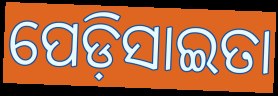
ପେଡ଼ିସାଇତା